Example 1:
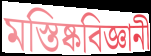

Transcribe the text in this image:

মস্তিষ্কবিজ্ঞানী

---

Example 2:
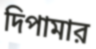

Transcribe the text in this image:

দিপামার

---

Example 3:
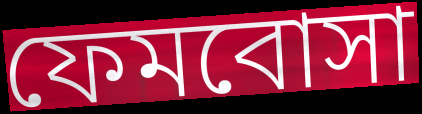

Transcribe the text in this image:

ফেমবোসা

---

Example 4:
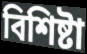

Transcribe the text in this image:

বিশিষ্টা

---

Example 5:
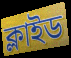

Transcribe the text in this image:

ক্লাইড